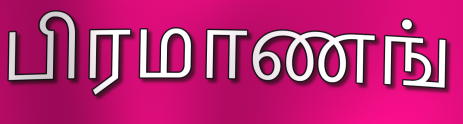
பிரமாணங்